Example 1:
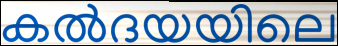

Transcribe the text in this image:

കൽദയയിലെ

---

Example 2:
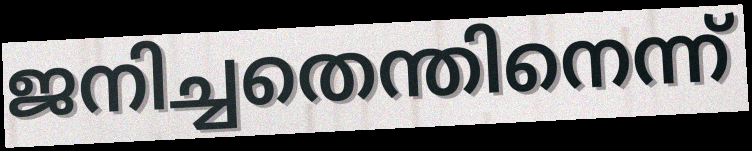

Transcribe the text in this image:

ജനിച്ചതെന്തിനെന്ന്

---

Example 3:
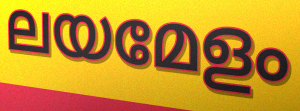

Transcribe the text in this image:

ലയമേളം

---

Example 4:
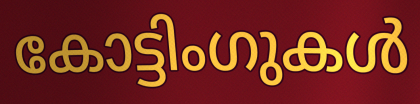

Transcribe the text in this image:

കോട്ടിംഗുകൾ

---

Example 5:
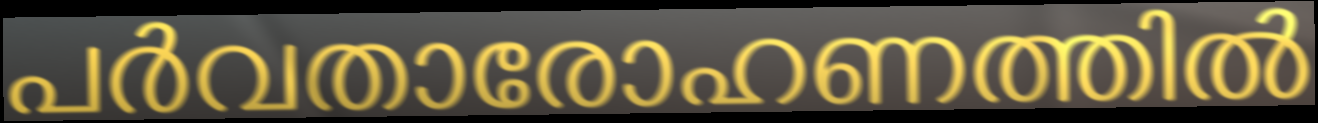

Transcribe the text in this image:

പർവതാരോഹണത്തിൽ